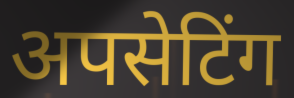
अपसेटिंग